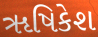
ૠષિકેશ